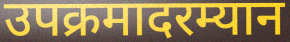
उपक्रमादरम्यान